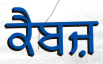
ਕੈਬਜ਼